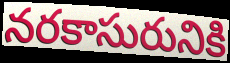
నరకాసురునికి